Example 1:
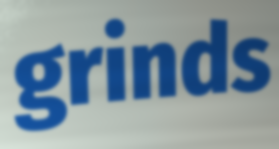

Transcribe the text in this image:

grinds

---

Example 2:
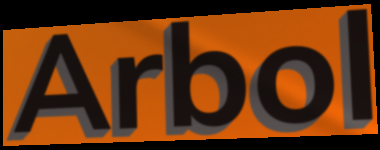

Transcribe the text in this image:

Arbol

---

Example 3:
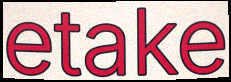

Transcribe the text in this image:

etake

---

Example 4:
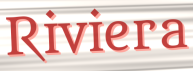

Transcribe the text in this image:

Riviera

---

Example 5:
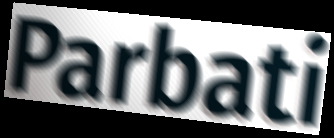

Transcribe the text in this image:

Parbati